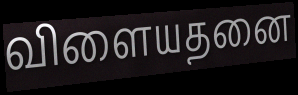
விளையதனை